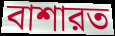
বাশারত